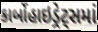
કાર્બોહાઇડ્રેટ્સમાં